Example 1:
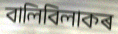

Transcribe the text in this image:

বালিবিলাকৰ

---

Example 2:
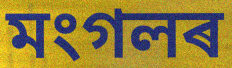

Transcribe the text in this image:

মংগলৰ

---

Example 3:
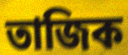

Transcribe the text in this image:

তাজিক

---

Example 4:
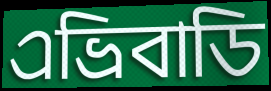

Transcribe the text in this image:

এভ্ৰিবাডি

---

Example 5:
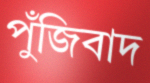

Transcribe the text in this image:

পুঁজিবাদ